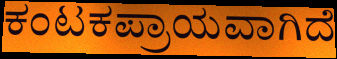
ಕಂಟಕಪ್ರಾಯವಾಗಿದೆ